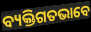
ବ୍ୟକ୍ତିଗତଭାବେ